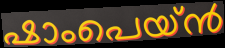
ഷാംപെയ്ൻ